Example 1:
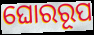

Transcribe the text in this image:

ଘୋରରୂପ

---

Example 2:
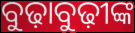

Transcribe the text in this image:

ବୁଢ଼ାବୁଢ଼ୀଙ୍କ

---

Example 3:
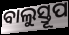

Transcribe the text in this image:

ବାଲୁସ୍ତୂପ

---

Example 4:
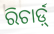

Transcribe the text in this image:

ରିଚାର୍ଡ଼୍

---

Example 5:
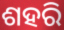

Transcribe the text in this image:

ଶହରି